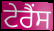
ਟੇਰੈਂਸ